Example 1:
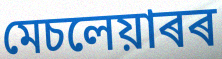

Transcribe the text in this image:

মেচলেয়াৰৰ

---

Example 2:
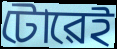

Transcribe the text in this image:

টোৱেই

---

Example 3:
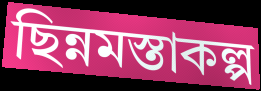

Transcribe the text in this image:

ছিন্নমস্তাকল্প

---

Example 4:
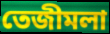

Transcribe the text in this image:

তেজীমলা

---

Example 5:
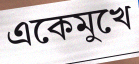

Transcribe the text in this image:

একেমুখে